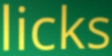
licks